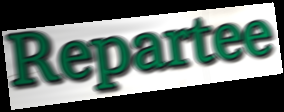
Repartee